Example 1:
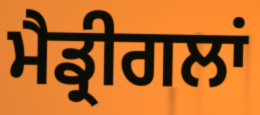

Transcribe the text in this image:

ਮੈਡ੍ਰੀਗਲਾਂ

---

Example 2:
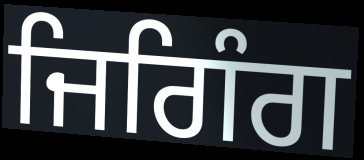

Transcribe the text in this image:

ਜਿਗਿੰਗ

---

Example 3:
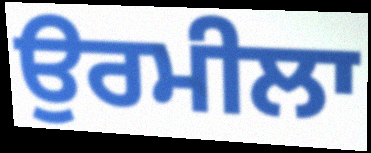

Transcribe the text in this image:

ਉਰਮੀਲਾ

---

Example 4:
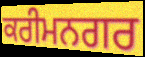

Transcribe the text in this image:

ਕਰੀਮਨਗਰ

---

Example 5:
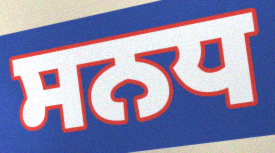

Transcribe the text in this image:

ਸਨਧ